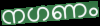
നഗണം